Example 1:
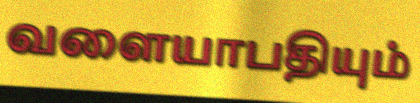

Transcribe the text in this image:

வளையாபதியும்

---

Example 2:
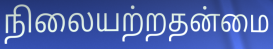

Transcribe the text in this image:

நிலையற்றதன்மை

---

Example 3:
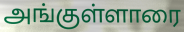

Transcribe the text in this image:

அங்குள்ளாரை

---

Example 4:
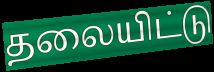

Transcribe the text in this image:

தலையிட்டு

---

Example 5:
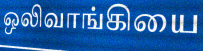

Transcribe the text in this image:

ஒலிவாங்கியை